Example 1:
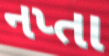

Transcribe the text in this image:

નપ્તા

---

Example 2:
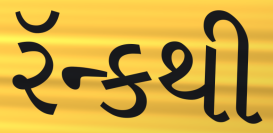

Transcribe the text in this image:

રૅન્કથી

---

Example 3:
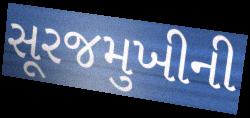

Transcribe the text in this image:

સૂરજમુખીની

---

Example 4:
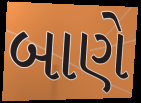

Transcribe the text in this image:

બાણે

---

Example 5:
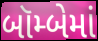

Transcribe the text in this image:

બૉમ્બેમાં